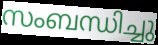
സംബന്ധിച്ചു